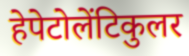
हेपेटोलेंटिकुलर